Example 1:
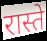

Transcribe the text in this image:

रास्ते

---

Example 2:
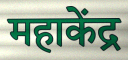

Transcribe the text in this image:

महाकेंद्र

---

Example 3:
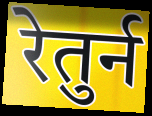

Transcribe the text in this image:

रेतुर्न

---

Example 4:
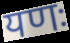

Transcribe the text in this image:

यणः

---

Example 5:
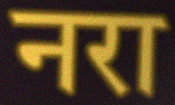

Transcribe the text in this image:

नरा